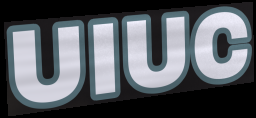
UIUC